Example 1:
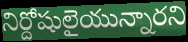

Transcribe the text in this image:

నిర్దోషులైయున్నారని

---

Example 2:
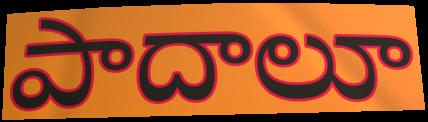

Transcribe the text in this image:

పాదాలూ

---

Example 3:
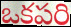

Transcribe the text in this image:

ఒకపరి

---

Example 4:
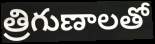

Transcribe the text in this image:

త్రిగుణాలతో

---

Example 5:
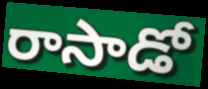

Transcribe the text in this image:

రాసాడో